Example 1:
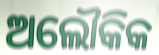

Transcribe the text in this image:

ଅଲୌକିକ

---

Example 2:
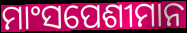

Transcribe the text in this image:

ମାଂସପେଶୀମାନ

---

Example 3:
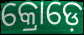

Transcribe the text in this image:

କ୍ରୋଡ଼େ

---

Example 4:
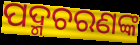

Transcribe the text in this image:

ପଦ୍ମଚରଣଙ୍କ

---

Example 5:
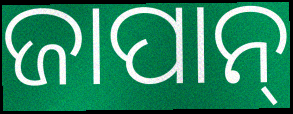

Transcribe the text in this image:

ଜାପାନ୍